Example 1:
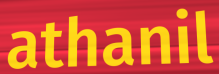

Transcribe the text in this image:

athanil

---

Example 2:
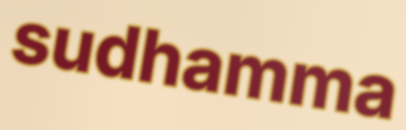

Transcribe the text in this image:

sudhamma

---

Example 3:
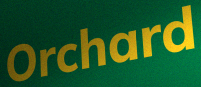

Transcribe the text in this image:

Orchard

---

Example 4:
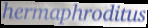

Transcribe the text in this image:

hermaphroditus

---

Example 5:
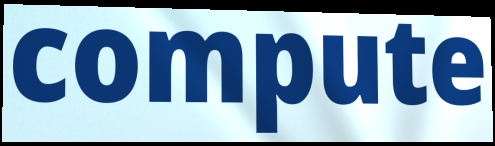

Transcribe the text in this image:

compute